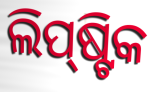
ଲିପ୍‌ଷ୍ଟିକ